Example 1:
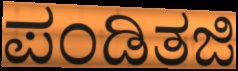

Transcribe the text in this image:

ಪಂಡಿತಜಿ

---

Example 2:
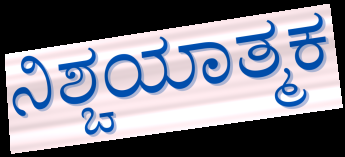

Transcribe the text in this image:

ನಿಶ್ಚಯಾತ್ಮಕ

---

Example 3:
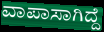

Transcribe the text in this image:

ವಾಪಾಸಾಗಿದ್ದೆ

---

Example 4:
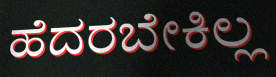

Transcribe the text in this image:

ಹೆದರಬೇಕಿಲ್ಲ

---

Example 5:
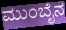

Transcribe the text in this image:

ಮುಂಬೈನ